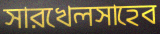
সারখেলসাহেব